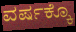
ವರ್ಷಕ್ಕೊ